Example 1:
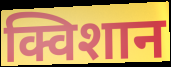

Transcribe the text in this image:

क्विशान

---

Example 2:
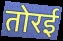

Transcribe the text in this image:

तोरई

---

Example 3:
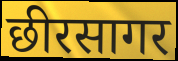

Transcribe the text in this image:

छीरसागर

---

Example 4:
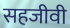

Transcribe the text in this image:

सहजीवी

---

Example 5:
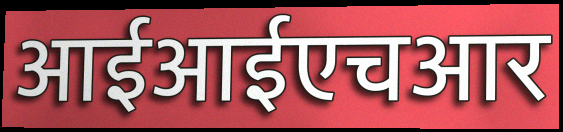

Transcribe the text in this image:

आईआईएचआर